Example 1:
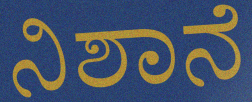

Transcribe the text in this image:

ನಿಶಾನೆ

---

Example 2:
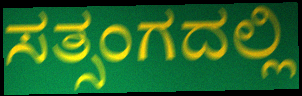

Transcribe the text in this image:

ಸತ್ಸಂಗದಲ್ಲಿ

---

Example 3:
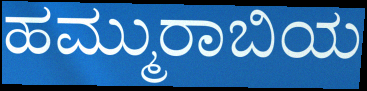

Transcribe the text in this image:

ಹಮ್ಮುರಾಬಿಯ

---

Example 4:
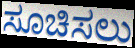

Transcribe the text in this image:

ಸೂಚಿಸಲು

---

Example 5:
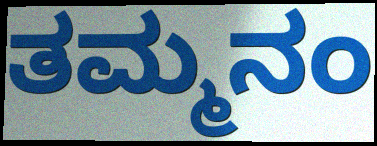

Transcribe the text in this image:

ತಮ್ಮನಂ